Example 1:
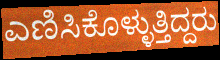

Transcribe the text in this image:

ಎಣಿಸಿಕೊಳ್ಳುತ್ತಿದ್ದರು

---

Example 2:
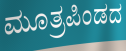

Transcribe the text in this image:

ಮೂತ್ರಪಿಂಡದ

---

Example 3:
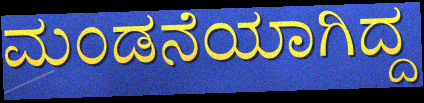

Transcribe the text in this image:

ಮಂಡನೆಯಾಗಿದ್ದ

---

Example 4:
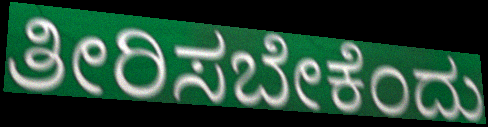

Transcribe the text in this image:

ತೀರಿಸಬೇಕೆಂದು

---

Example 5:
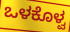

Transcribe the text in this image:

ಒಳಕೊಳ್ವ